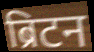
ब्रिटन